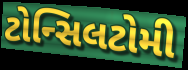
ટોન્સિલટોમી